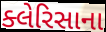
ક્લેરિસાના